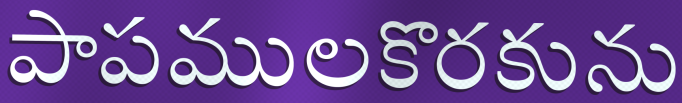
పాపములకొరకును